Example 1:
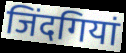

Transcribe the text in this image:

जिंदगियां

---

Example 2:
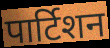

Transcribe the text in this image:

पार्टिशन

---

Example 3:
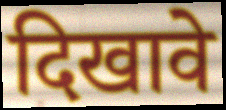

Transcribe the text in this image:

दिखावे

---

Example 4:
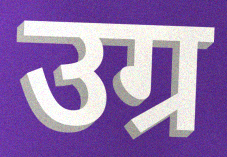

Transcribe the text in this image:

उग्र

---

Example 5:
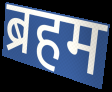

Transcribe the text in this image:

ब्रहम